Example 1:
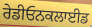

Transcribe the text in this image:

ਰੇਡੀਓਨਕਲਾਈਡ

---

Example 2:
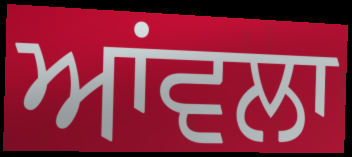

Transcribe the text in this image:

ਆਂਵਲਾ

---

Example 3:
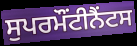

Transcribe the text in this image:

ਸੁਪਰਮੌਂਟੀਨੈਂਟਸ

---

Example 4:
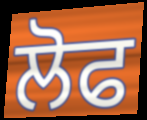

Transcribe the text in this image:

ਲੋਫ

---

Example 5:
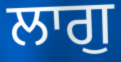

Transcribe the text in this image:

ਲਾਗੁ